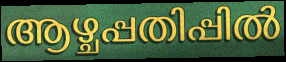
ആഴ്ചപ്പതിപ്പിൽ